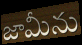
జామీను